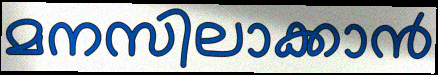
മനസിലാക്കാൻ